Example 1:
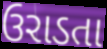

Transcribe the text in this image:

ઉરાડતા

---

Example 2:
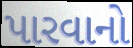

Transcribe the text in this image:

પારવાનો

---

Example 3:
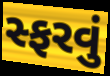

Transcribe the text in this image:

સ્ફરવું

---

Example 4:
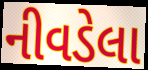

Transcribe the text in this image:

નીવડેલા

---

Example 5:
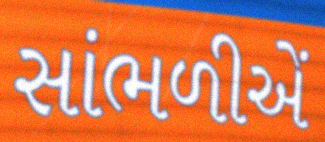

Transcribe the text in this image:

સાંભળીએં